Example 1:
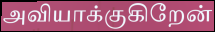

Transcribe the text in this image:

அவியாக்குகிறேன்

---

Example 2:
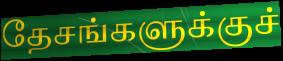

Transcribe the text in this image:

தேசங்களுக்குச்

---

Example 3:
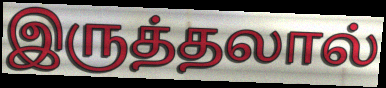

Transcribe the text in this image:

இருத்தலால்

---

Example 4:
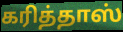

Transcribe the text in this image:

கரித்தாஸ்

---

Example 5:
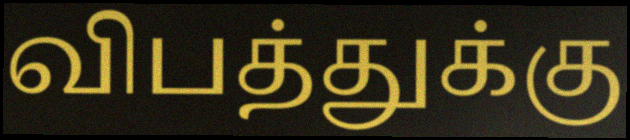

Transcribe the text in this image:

விபத்துக்கு